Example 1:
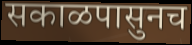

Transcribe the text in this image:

सकाळपासुनच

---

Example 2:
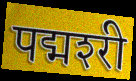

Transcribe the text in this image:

पद्मश्री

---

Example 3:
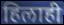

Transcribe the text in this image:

हिलाही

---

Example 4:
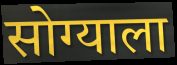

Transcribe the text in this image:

सोग्याला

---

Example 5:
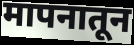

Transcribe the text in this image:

मापनातून